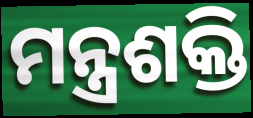
ମନ୍ତ୍ରଶକ୍ତି